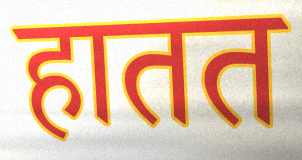
हातत